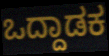
ಒದ್ದಾಡಕ